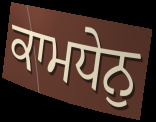
ਕਾਮਧੇਨੁ